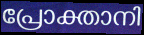
പ്രോക്താനി